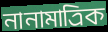
নানামাত্রিক